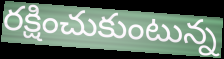
రక్షించుకుంటున్న